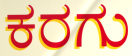
ಕರಗು